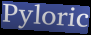
Pyloric